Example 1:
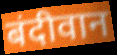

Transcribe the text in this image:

बंदीवान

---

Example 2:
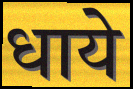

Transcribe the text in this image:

धाये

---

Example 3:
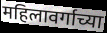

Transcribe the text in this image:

महिलावर्गाच्या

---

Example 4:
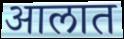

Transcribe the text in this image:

आलात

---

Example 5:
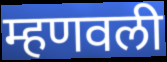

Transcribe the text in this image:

म्हणवली